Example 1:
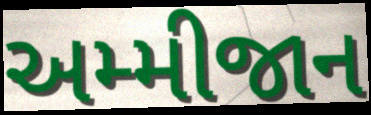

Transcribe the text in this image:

અમ્મીજાન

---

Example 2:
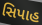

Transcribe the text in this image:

સિપાહ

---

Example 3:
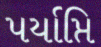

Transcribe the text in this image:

પર્યાપ્તિ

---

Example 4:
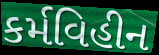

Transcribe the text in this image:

કર્મવિહીન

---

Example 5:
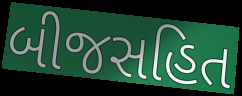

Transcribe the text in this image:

બીજસહિત